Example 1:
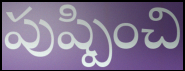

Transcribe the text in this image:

పుష్పించి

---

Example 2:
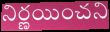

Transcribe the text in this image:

నిర్ణయించని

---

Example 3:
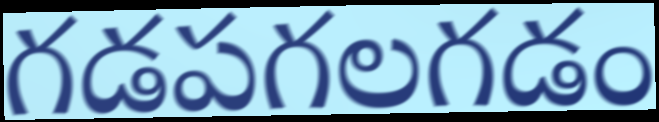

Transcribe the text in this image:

గడపగలగడం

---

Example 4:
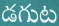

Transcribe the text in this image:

డగుట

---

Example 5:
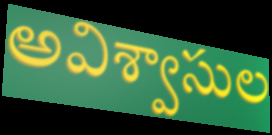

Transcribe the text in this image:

అవిశ్వాసుల